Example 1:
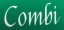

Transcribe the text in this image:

Combi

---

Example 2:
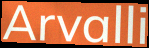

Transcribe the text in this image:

Arvalli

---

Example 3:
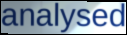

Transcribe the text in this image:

analysed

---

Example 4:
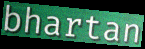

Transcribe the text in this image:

bhartan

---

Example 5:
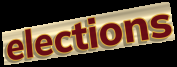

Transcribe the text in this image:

elections